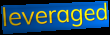
leveraged